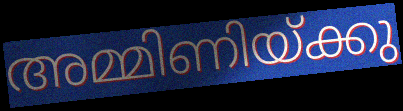
അമ്മിണിയ്ക്കു